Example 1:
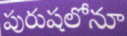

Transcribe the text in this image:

పురుషలోనూ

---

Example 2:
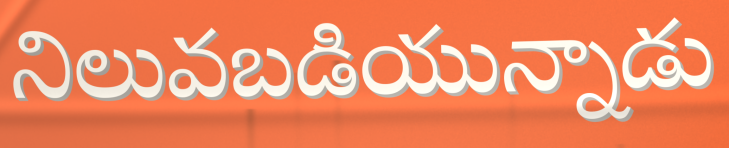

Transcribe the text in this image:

నిలువబడియున్నాడు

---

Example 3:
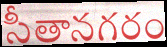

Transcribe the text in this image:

సీతానగరం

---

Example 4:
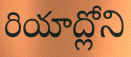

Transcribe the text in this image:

రియాద్లోని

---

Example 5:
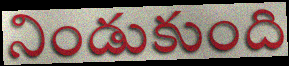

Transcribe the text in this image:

నిండుకుంది